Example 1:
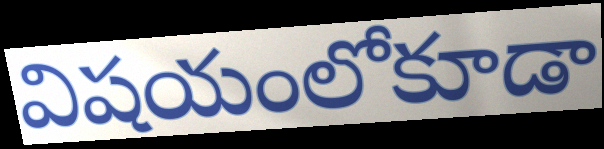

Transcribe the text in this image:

విషయంలోకూడా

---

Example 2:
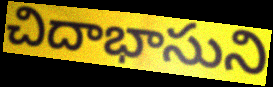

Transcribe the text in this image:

చిదాభాసుని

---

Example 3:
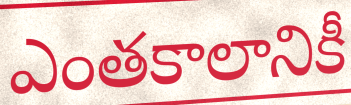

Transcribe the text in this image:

ఎంతకాలానికీ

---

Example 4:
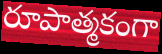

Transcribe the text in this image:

రూపాత్మకంగా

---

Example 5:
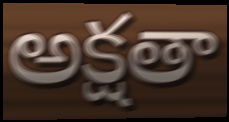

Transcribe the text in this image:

అక్షతా